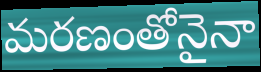
మరణంతోనైనా